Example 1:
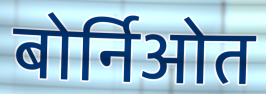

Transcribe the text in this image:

बोर्निओत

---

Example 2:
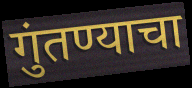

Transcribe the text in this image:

गुंतण्याचा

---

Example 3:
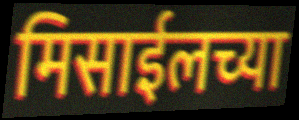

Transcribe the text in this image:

मिसाईलच्या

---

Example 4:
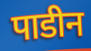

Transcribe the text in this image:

पाडीन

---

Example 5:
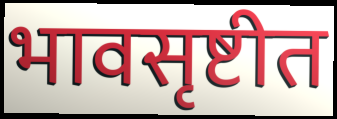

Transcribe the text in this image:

भावसृष्टीत